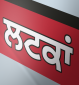
ਲਟਕਾਂ